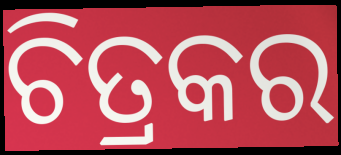
ଚିତ୍ରକର